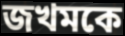
জখমকে